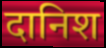
दानिश